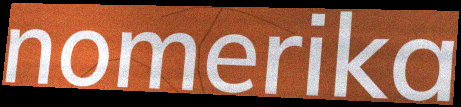
nomerika